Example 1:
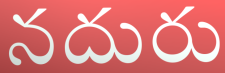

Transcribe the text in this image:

నదురు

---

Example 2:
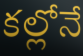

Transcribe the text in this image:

కల్లోనే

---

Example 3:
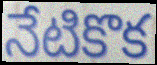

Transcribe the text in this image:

నేటికొక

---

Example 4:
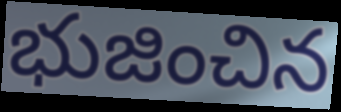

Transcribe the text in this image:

భుజించిన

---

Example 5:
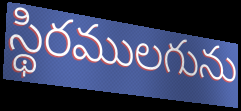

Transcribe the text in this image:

స్థిరములగును